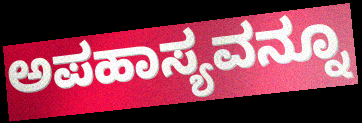
ಅಪಹಾಸ್ಯವನ್ನೂ